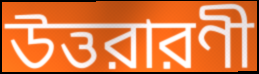
উত্তরারণী